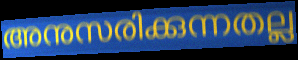
അനുസരിക്കുന്നതല്ല